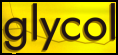
glycol